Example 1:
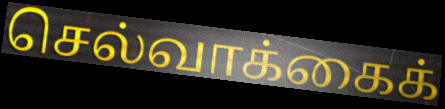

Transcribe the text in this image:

செல்வாக்கைக்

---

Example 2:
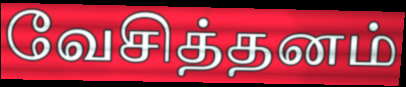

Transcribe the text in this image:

வேசித்தனம்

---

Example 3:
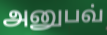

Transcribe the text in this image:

அனுபவ்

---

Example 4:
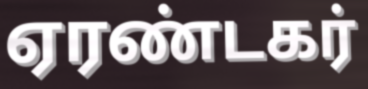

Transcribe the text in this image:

ஏரண்டகர்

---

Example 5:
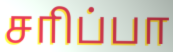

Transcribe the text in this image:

சரிப்பா